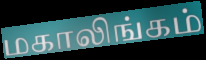
மகாலிங்கம்